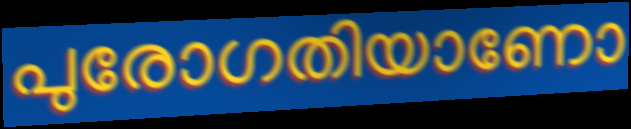
പുരോഗതിയാണോ